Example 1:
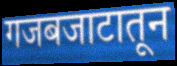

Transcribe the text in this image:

गजबजाटातून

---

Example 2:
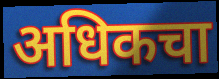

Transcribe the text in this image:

अधिकचा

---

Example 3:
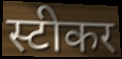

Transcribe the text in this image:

स्टीकर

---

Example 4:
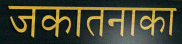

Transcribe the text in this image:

जकातनाका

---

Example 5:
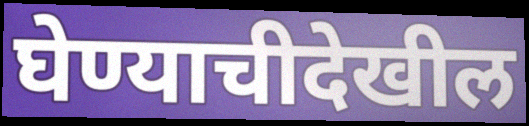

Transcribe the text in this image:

घेण्याचीदेखील